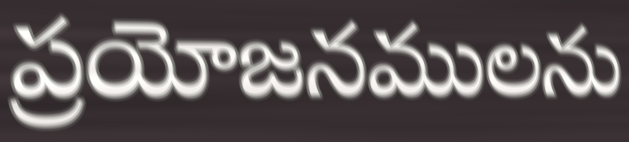
ప్రయోజనములను